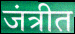
जंत्रीत